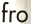
fro